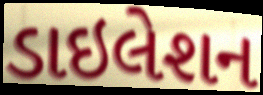
ડાઇલેશન